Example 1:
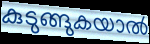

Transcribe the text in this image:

കുടുങ്ങുകയാൽ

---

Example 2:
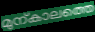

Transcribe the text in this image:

മുന്കാലത്തെ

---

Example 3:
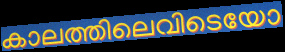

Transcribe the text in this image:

കാലത്തിലെവിടെയോ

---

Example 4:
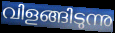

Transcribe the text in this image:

വിളങ്ങിടുന്നു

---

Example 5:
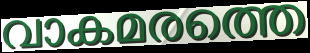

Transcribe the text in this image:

വാകമരത്തെ